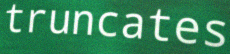
truncates